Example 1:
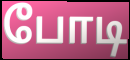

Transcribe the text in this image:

போடி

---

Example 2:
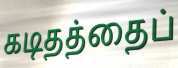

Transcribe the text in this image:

கடிதத்தைப்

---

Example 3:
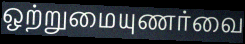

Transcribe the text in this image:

ஒற்றுமையுணர்வை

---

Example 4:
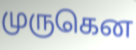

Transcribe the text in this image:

முருகென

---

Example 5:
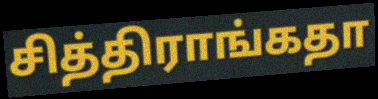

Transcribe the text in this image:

சித்திராங்கதா